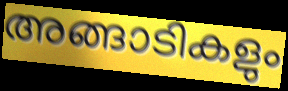
അങ്ങാടികളും